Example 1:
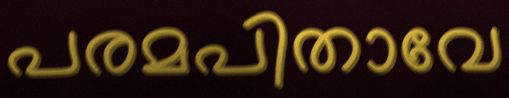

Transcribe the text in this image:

പരമപിതാവേ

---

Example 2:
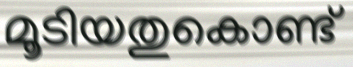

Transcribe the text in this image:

മൂടിയതുകൊണ്ട്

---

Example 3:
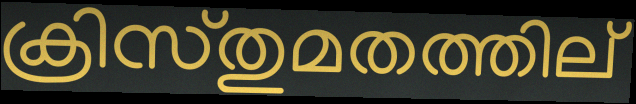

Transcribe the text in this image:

ക്രിസ്തുമതത്തില്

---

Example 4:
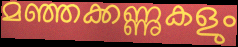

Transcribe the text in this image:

മഞ്ഞക്കണ്ണുകളും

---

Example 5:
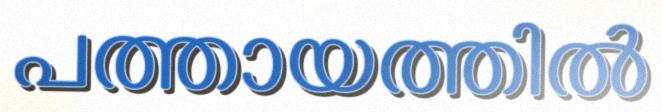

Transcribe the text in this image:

പത്തായത്തിൽ